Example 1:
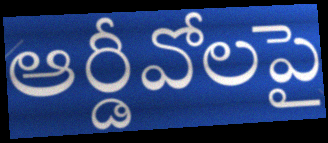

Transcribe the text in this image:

ఆర్డీవోలపై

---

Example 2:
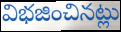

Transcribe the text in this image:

విభజించినట్లు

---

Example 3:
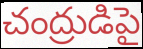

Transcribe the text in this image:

చంద్రుడిపై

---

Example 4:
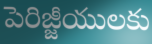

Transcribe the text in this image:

పెరిజ్జీయులకు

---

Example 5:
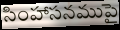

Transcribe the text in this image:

సింహాసనముపై